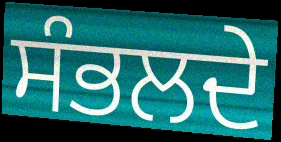
ਸੰਭਲਦੇ